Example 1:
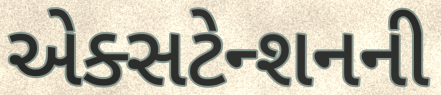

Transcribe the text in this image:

એક્સટેન્શનની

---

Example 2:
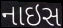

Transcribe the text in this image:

નાઇસ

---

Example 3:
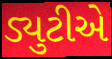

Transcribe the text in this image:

ડ્યુટીએ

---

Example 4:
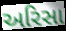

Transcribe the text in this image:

અરિસા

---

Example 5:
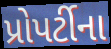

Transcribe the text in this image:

પ્રોપર્ટીના